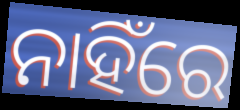
ନାହିଁରେ